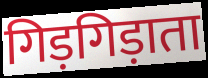
गिड़गिड़ाता